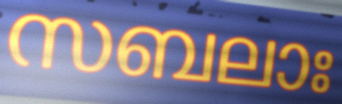
സബലാഃ